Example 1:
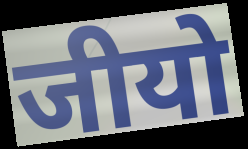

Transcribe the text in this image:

जीयो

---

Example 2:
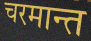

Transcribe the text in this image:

चरमान्त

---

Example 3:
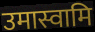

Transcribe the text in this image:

उमास्वामि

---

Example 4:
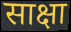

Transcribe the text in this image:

साक्षा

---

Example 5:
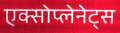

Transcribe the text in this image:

एक्सोप्लेनेट्स